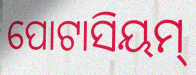
ପୋଟାସିୟମ୍